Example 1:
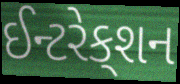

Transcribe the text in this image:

ઈન્ટરેક્‌શન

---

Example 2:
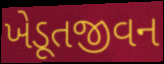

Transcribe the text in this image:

ખેડૂતજીવન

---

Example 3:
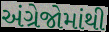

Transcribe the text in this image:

અંગ્રેજોમાંથી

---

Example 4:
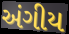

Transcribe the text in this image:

અંગીય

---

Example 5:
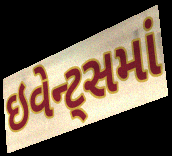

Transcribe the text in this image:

ઇવેન્ટ્સમાં